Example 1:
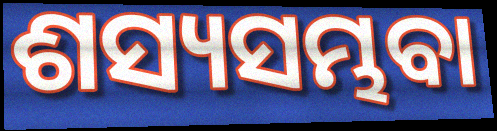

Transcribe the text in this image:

ଶସ୍ୟସମ୍ଭବା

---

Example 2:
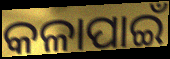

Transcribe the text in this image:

କଳାପାଇଁ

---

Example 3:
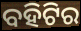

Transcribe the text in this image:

ବହିଟିର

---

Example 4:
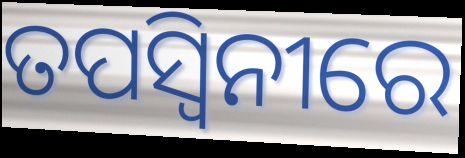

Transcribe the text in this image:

ତପସ୍ଵିନୀରେ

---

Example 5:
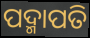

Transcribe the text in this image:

ପଦ୍ମାପତି